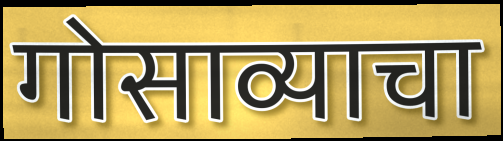
गोसाव्याचा